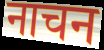
नाचन